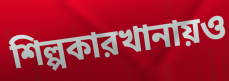
শিল্পকারখানায়ও